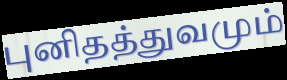
புனிதத்துவமும்